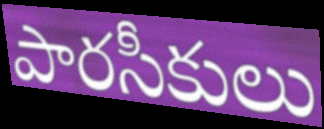
పారసీకులు